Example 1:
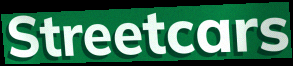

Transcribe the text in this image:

Streetcars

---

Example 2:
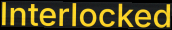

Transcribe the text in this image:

Interlocked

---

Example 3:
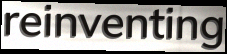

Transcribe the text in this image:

reinventing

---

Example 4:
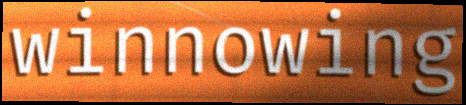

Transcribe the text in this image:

winnowing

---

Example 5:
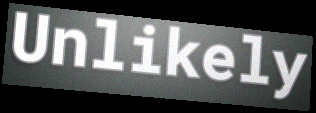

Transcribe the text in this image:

Unlikely